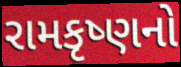
રામકૃષ્ણનો